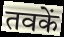
तवकें